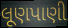
લૂણપાણી